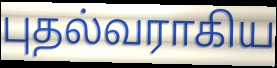
புதல்வராகிய